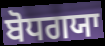
ਬੋਧਗਯਾ